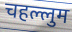
चहल्लुम